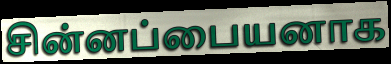
சின்னப்பையனாக